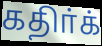
கதிர்க்